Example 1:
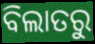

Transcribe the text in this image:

ବିଲାତରୁ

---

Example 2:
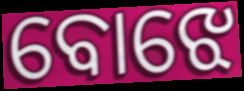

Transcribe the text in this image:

ବୋଝେ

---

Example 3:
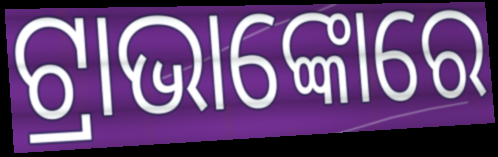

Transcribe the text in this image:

ଟ୍ରାଭାଙ୍କୋରେ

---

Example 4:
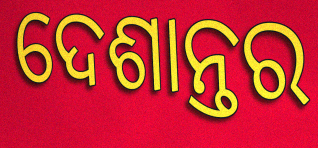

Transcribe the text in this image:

ଦେଶାନ୍ତର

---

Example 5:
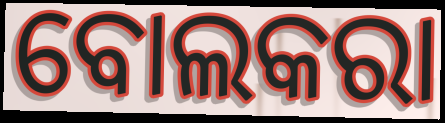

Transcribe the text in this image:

ବୋଲକରା